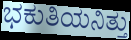
ಭಕುತಿಯನಿತ್ತು